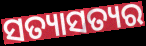
ସତ୍ୟାସତ୍ୟର